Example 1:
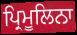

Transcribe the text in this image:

ਪ੍ਰਿਮੂਲਿਨਾ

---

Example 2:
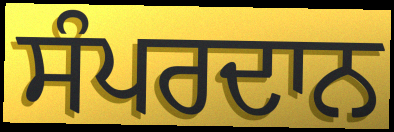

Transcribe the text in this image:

ਸੰਪਰਦਾਨ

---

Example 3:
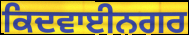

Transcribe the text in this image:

ਕਿਦਵਾਈਨਗਰ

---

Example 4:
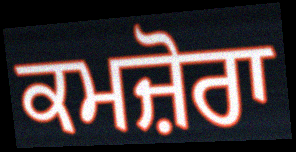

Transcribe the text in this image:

ਕਮਜ਼ੋਰਾ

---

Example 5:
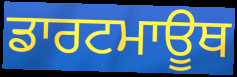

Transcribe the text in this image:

ਡਾਰਟਮਾਊਥ